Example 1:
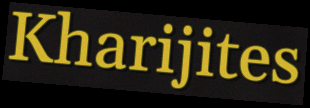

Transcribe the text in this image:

Kharijites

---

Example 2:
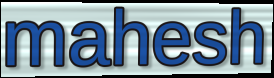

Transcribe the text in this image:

mahesh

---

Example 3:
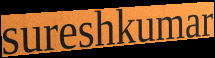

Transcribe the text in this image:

sureshkumar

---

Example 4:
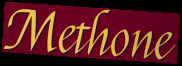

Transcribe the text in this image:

Methone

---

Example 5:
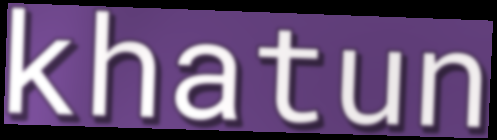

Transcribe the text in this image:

khatun